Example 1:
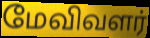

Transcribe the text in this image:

மேவிவளர்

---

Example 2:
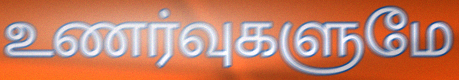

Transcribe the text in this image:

உணர்வுகளுமே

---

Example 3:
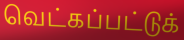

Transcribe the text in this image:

வெட்கப்பட்டுக்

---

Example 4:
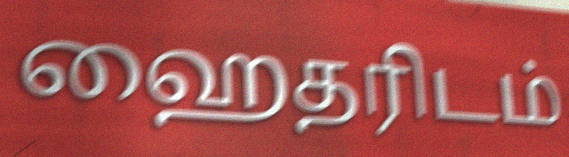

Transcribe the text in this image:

ஹைதரிடம்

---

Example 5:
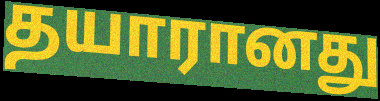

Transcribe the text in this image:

தயாரானது